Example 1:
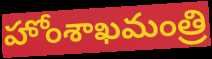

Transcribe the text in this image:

హోంశాఖమంత్రి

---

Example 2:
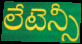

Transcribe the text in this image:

లేటెన్సీ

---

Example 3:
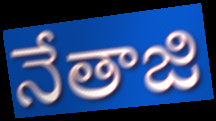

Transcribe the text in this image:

నేతాజి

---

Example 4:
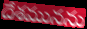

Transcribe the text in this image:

దేశమునను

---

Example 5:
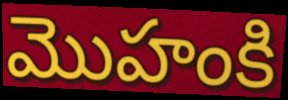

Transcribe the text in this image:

మొహంకి